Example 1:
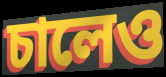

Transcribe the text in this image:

চালেও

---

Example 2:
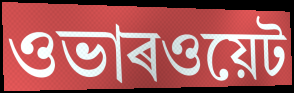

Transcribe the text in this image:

ওভাৰওয়েট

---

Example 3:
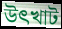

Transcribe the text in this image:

উৎখাট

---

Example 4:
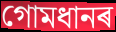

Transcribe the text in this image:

গোমধানৰ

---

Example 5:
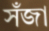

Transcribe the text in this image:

সঁজা